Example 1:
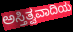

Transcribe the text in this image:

ಅಸ್ತಿತ್ವವಾದಿಯ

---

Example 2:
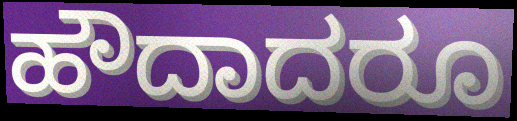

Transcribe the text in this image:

ಹೌದಾದರೂ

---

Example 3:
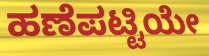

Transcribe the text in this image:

ಹಣೆಪಟ್ಟಿಯೇ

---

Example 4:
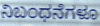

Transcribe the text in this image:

ನಿಬಂಧನೆಗಳೂ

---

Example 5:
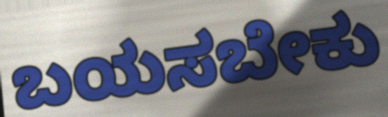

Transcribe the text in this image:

ಬಯಸಬೇಕು